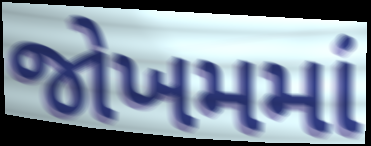
જોખમમાં